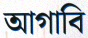
আগাবি